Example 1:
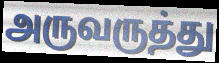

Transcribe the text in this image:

அருவருத்து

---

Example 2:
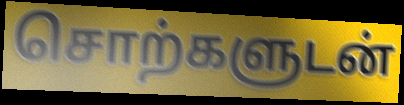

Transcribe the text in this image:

சொற்களுடன்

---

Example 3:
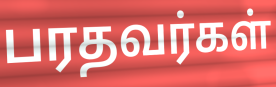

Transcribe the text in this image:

பரதவர்கள்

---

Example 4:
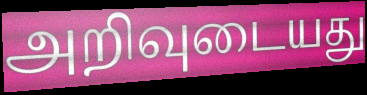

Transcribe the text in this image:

அறிவுடையது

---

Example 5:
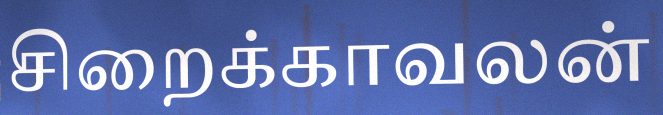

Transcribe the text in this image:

சிறைக்காவலன்